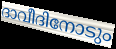
ദാവീദിനോടും